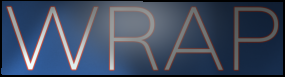
WRAP